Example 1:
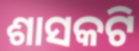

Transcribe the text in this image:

ଶାସକଟି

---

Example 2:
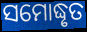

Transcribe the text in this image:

ସମୋଦ୍ଧୃତ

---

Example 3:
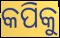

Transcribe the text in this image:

କପିକୁ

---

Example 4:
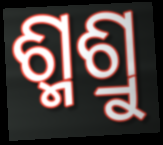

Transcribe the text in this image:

ଶ୍ମଶ୍ରୁ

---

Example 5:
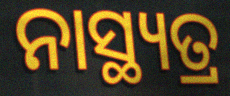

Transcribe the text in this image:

ନାସ୍ଥ୍ୟତ୍ର